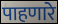
पाहणारे